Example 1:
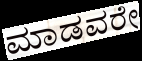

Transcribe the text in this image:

ಮಾಡವರೇ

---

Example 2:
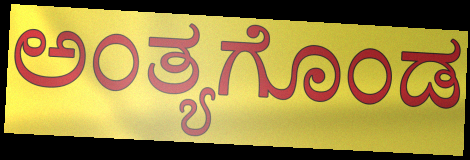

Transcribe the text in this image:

ಅಂತ್ಯಗೊಂಡ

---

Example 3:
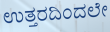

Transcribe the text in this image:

ಉತ್ತರದಿಂದಲೇ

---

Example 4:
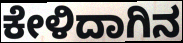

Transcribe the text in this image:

ಕೇಳಿದಾಗಿನ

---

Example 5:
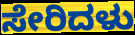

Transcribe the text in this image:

ಸೇರಿದಳು